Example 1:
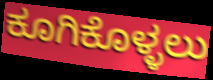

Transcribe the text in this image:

ಕೂಗಿಕೊಳ್ಳಲು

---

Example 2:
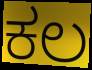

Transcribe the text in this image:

ಕಲ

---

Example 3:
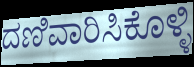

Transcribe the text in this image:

ದಣಿವಾರಿಸಿಕೊಳ್ಳಿ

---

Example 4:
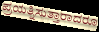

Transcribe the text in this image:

ಪ್ರಯತ್ನಿಸುತ್ತಾರಾದರೂ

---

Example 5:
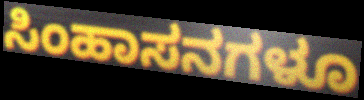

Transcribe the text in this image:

ಸಿಂಹಾಸನಗಳೂ